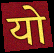
यो